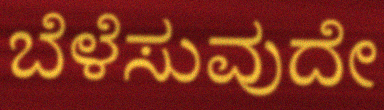
ಬೆಳೆಸುವುದೇ